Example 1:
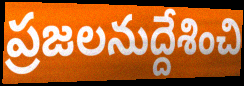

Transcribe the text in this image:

ప్రజలనుద్దేశించి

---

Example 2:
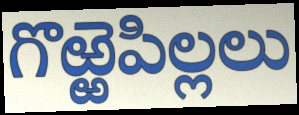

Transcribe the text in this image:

గొఱ్ఱెపిల్లలు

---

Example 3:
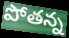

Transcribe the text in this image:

పోతన్న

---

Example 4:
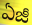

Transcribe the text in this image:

ఏజీ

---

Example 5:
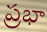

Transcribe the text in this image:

ప్రభా